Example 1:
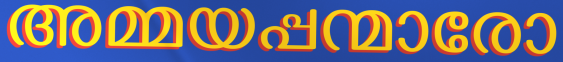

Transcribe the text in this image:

അമ്മയപ്പന്മാരോ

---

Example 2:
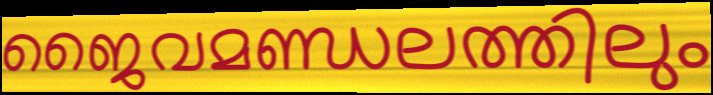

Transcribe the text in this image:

ജൈവമണ്ഡലത്തിലും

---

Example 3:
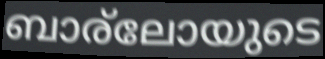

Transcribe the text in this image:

ബാര്ലോയുടെ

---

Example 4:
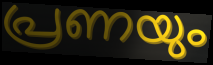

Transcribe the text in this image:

പ്രണയും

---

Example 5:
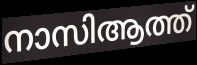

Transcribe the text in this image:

നാസിആത്ത്